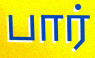
பார்